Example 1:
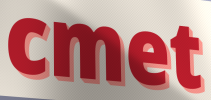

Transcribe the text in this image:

cmet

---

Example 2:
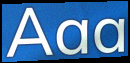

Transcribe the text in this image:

Aaa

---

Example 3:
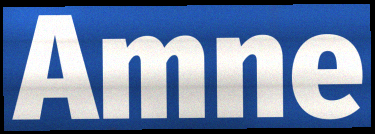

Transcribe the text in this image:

Amne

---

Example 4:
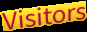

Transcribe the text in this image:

Visitors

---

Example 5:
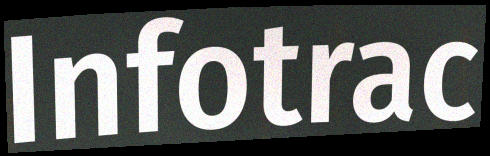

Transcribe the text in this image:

Infotrac